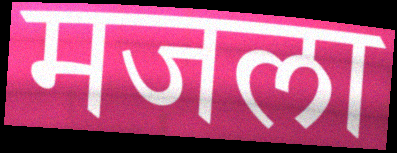
मजला